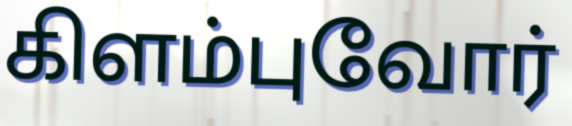
கிளம்புவோர்